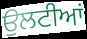
ਉਲਟੀਆਂ